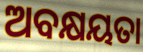
ଅବକ୍ଷୟତା